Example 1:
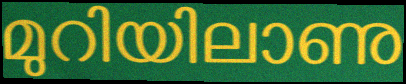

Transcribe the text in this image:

മുറിയിലാണു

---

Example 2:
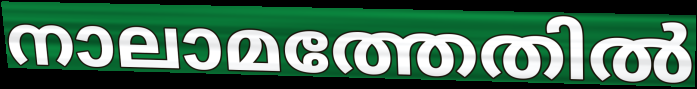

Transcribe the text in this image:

നാലാമത്തേതിൽ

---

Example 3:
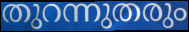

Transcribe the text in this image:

തുറന്നുതരും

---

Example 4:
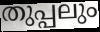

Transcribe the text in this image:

തുപ്പലും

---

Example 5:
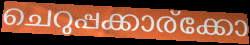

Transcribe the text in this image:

ചെറുപ്പക്കാര്ക്കോ